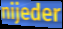
nijeder